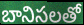
బానిసలతో